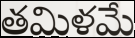
తమిళమే